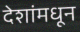
देशांमधून